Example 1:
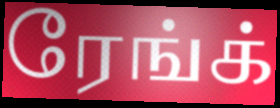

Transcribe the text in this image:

ரேங்க்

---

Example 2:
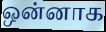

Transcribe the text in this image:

ஒன்னாக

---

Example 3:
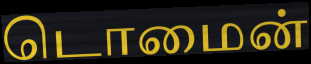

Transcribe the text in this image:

டொமைன்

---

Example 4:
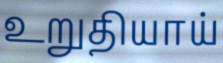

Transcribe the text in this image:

உறுதியாய்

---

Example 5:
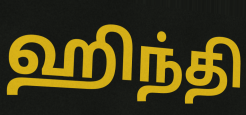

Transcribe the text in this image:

ஹிந்தி